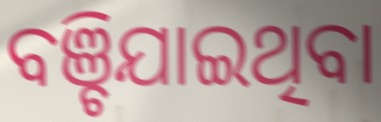
ବଞ୍ଚିଯାଇଥିବା